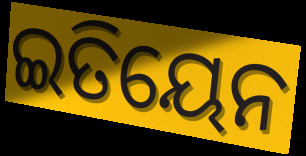
ଇତିୟେନ